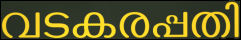
വടകരപ്പതി